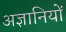
अज्ञानियों